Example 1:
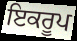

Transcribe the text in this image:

ਇਕਰੂਪ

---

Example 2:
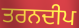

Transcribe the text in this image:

ਤਰਨਦੀਪ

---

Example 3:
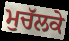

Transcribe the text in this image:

ਮੁਚੱਲਕੇ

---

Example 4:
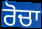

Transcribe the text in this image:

ਰੋਚਾ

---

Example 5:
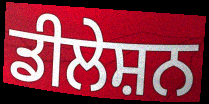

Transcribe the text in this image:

ਡੀਲੇਸ਼ਨ